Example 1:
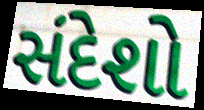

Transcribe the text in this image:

સંદેશો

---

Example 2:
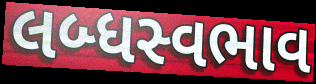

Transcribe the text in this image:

લબ્ધસ્વભાવ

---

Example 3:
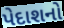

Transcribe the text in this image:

પેદાશનો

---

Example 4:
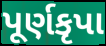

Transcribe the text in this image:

પૂર્ણકૃપા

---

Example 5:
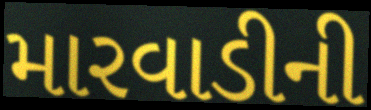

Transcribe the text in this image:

મારવાડીની